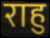
राहु